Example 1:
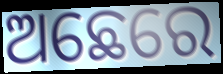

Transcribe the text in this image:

ଅଛେରେ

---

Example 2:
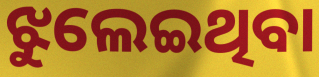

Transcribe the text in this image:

ଝୁଲେଇଥିବା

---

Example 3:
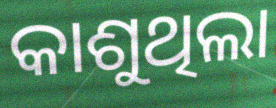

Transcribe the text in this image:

କାଶୁଥିଲା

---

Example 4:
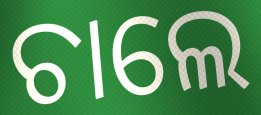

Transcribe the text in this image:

ଚାଲେ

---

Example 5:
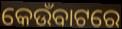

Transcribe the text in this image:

କେଉଁବାଟରେ